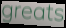
greats